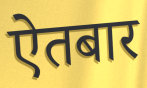
ऐतबार